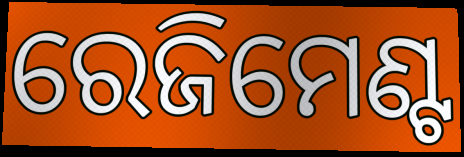
ରେଜିମେଣ୍ଟ